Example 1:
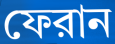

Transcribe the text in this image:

ফেরান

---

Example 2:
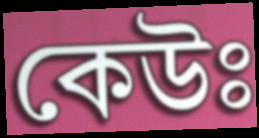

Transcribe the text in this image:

কেউঃ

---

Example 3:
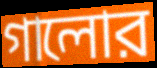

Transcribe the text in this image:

গালোর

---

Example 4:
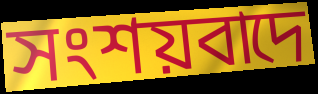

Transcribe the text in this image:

সংশয়বাদে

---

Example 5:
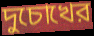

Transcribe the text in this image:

দুচোখের